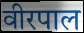
वीरपाल